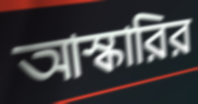
আস্কারির